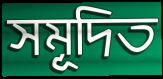
সমূদিত